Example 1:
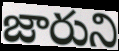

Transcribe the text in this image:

జారుని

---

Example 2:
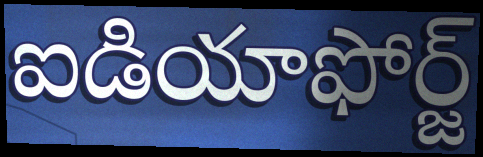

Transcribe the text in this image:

ఐడియాఫోర్జ్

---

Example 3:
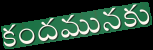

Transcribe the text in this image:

కందమునకు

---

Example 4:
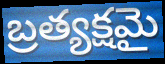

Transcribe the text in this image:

బ్రత్యక్షమై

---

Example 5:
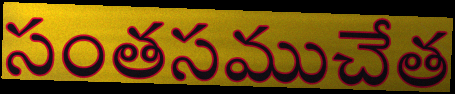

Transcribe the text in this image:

సంతసముచేత